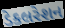
ડેકલરેશન